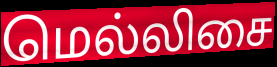
மெல்லிசை